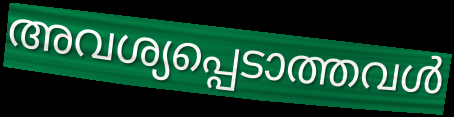
അവശ്യപ്പെടാത്തവൾ